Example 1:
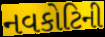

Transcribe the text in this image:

નવકોટિની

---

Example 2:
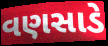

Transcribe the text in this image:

વણસાડે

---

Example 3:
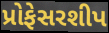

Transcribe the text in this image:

પ્રોફેસરશીપ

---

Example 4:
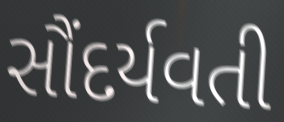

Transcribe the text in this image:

સૌંદર્યવતી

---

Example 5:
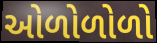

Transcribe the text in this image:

ઓળોળોળો